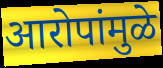
आरोपांमुळे